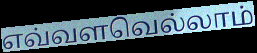
எவ்வளவெல்லாம்